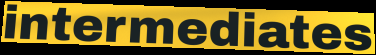
intermediates